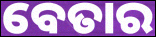
ବେତାର